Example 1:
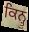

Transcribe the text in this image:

ਕਿਨ੍ਤੁ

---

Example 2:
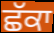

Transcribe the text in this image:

ਛੱਕਾ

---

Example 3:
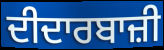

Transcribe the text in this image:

ਦੀਦਾਰਬਾਜ਼ੀ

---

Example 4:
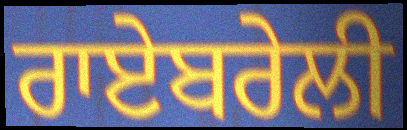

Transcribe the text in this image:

ਰਾਏਬਰੇਲੀ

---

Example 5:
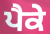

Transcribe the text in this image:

ਪੈਕੇ